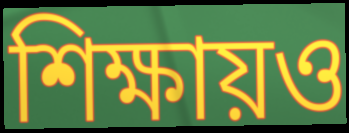
শিক্ষায়ও